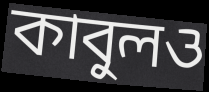
কাবুলও